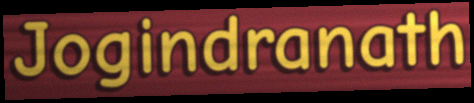
Jogindranath